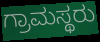
ಗ್ರಾಮಸ್ಥರು